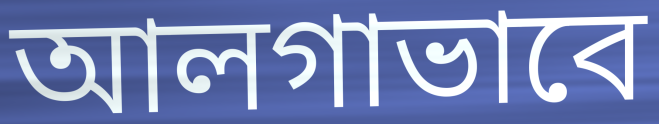
আলগাভাবে